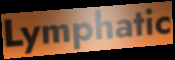
Lymphatic